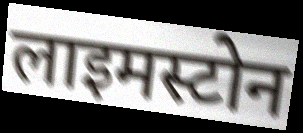
लाइमस्टोन